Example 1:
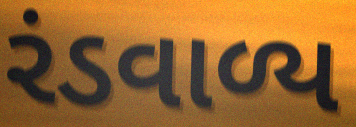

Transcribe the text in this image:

રંડવાળ્ય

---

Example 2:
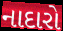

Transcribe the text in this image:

નાદારો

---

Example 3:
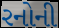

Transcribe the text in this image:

રનોની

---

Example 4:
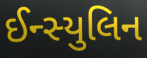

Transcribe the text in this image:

ઈન્સ્યુલિન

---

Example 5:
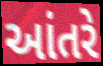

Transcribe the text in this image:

આંતરે